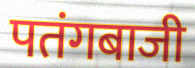
पतंगबाजी